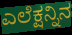
ಎಲೆಕ್ಷನ್ನಿನ